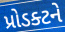
પ્રોડક્ટને